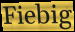
Fiebig